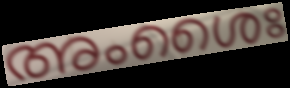
അംശൈഃ